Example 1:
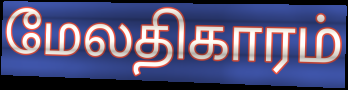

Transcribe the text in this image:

மேலதிகாரம்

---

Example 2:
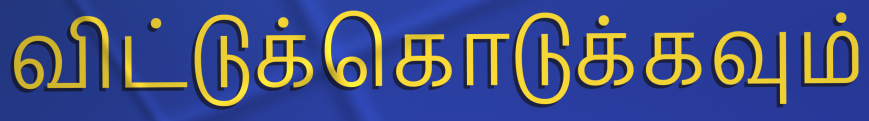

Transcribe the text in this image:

விட்டுக்கொடுக்கவும்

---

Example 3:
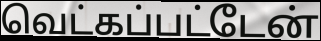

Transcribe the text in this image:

வெட்கப்பட்டேன்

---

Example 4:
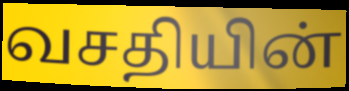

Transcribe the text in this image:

வசதியின்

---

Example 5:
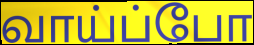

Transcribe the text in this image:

வாய்ப்போ